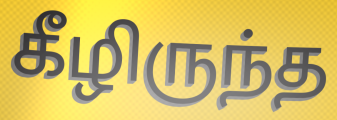
கீழிருந்த